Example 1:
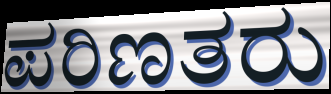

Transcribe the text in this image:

ಪರಿಣತರು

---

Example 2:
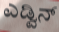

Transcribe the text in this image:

ಎಡ್ವಿನ್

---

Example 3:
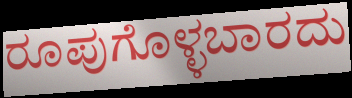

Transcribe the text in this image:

ರೂಪುಗೊಳ್ಳಬಾರದು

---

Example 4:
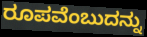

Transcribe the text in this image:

ರೂಪವೆಂಬುದನ್ನು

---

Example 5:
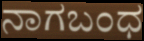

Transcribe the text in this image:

ನಾಗಬಂಧ